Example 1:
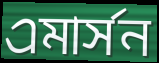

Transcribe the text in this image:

এমার্সন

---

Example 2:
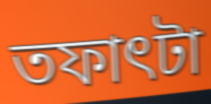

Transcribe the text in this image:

তফাৎটা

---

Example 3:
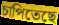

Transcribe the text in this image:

চাপিতেছে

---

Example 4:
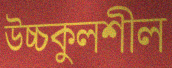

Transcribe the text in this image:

উচ্চকুলশীল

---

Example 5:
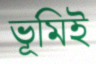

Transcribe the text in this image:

ভূমিই